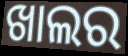
ଖାଲର